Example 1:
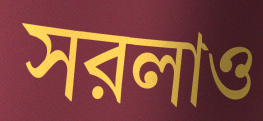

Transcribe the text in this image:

সরলাও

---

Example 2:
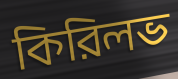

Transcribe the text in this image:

কিরিলভ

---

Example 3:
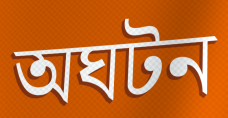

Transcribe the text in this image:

অঘটন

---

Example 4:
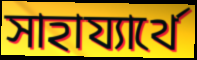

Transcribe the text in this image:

সাহায্যার্থে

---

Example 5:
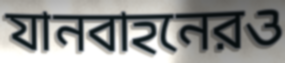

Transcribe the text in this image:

যানবাহনেরও